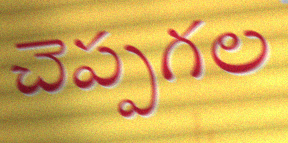
చెప్పగల